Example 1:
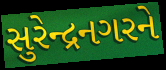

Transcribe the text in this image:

સુરેન્દ્રનગરને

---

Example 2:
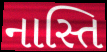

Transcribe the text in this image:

નાસ્તિ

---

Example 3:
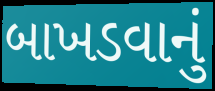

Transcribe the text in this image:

બાખડવાનું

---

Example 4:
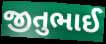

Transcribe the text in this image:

જીતુભાઈ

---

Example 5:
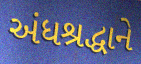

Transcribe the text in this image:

અંધશ્રદ્ધાને